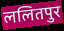
ललितपुर